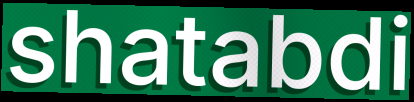
shatabdi